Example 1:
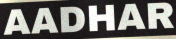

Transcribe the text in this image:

AADHAR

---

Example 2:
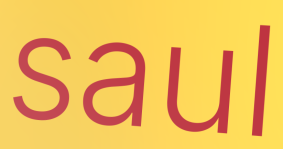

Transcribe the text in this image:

saul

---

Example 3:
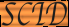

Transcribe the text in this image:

SCID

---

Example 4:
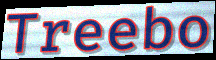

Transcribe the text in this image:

Treebo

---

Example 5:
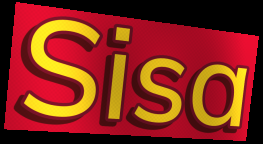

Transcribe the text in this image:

Sisa